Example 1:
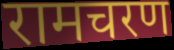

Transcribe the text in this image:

रामचरण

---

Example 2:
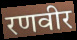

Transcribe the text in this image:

रणवीर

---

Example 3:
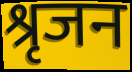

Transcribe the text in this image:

श्रृजन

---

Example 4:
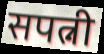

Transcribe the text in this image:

सपत्नी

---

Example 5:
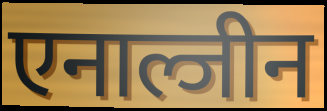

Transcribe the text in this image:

एनाल्जीन